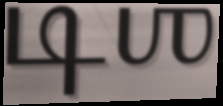
டிஶ